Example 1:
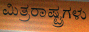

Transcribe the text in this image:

ಮಿತ್ರರಾಷ್ಟ್ರಗಳು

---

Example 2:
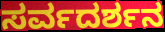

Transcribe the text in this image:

ಸರ್ವದರ್ಶನ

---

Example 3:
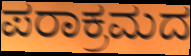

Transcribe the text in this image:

ಪರಾಕ್ರಮದ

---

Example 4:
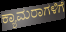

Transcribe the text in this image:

ಕ್ಯಾಮರಾಗಳಿಗೆ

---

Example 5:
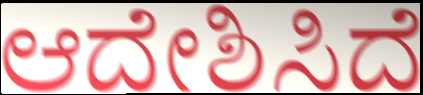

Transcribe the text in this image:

ಆದೇಶಿಸಿದೆ